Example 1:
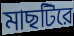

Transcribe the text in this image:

মাছটিরে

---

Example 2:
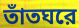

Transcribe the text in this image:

তাঁতঘরে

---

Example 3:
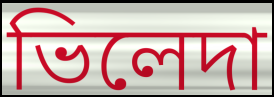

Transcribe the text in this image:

ভিলেদা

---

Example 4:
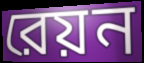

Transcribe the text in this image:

রেয়ন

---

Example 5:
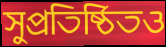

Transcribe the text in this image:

সুপ্রতিষ্ঠিতও